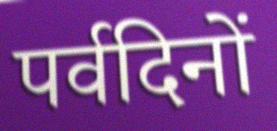
पर्वदिनों